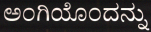
ಅಂಗಿಯೊಂದನ್ನು